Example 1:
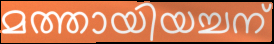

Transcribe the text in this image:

മത്തായിയച്ചന്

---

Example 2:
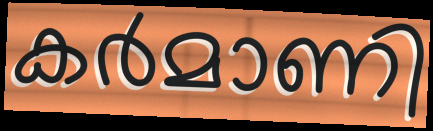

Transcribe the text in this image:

കർമാണി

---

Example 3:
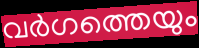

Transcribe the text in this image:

വർഗത്തെയും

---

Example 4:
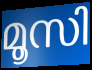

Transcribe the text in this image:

മൂസി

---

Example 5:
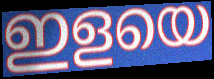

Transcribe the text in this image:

ഇളയെ